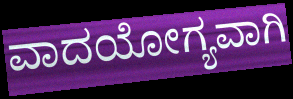
ವಾದಯೋಗ್ಯವಾಗಿ